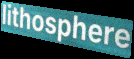
lithosphere